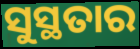
ସୁସ୍ଥତାର